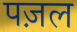
पज़ल